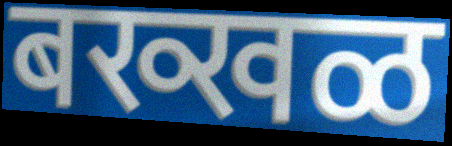
बख्खळ